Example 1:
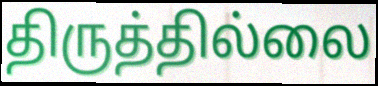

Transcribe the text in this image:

திருத்தில்லை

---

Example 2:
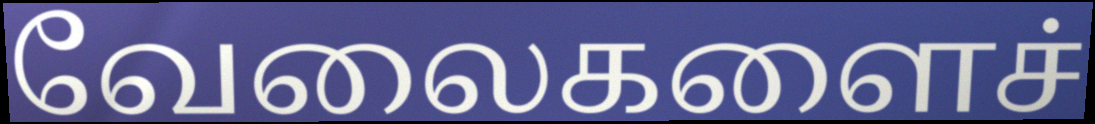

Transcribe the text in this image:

வேலைகளைச்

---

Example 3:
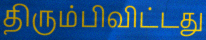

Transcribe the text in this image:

திரும்பிவிட்டது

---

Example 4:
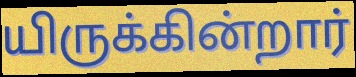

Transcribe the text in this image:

யிருக்கின்றார்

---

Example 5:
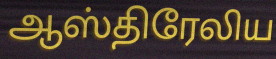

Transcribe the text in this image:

ஆஸ்திரேலிய